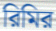
রিমির